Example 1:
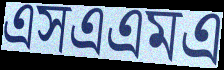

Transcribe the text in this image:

এসএএমএ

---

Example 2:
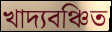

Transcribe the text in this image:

খাদ্যবঞ্চিত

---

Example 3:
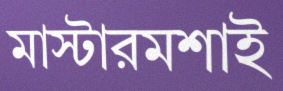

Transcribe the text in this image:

মাস্টারমশাই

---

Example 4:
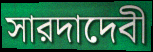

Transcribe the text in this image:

সারদাদেবী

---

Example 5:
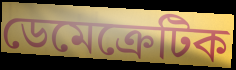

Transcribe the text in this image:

ডেমেক্রেটিক